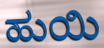
ಹುಯಿ